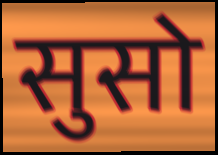
सुसो